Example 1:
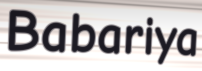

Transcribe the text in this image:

Babariya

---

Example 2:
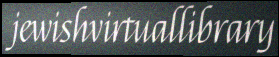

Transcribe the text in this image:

jewishvirtuallibrary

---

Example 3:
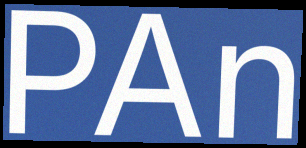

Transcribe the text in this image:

PAn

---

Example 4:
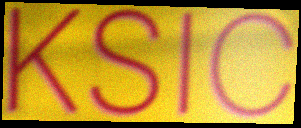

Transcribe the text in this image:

KSIC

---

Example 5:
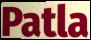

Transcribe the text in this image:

Patla